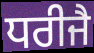
ਧਰੀਜੈ